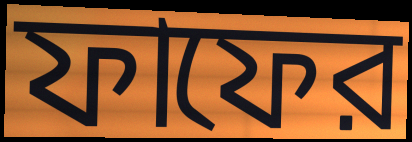
ফাফের